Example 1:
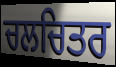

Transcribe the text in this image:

ਚਲਚਿਤਰ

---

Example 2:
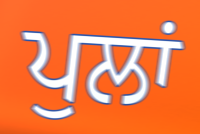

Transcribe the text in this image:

ਪੁਲਾਂ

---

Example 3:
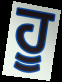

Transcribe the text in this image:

ਹੂ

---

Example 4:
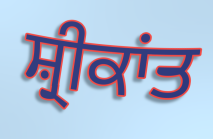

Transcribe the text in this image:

ਸ਼੍ਰੀਕਾਂਤ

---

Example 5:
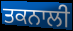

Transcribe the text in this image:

ਤਕਨਾਲੀ